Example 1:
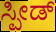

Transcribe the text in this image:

ಸ್ಪೀಡ್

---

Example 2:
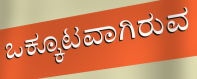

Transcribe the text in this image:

ಒಕ್ಕೂಟವಾಗಿರುವ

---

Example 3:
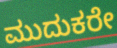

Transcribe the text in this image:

ಮುದುಕರೇ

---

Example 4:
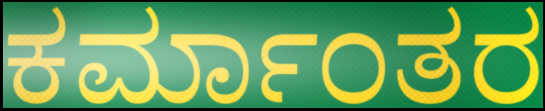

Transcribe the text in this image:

ಕರ್ಮಾಂತರ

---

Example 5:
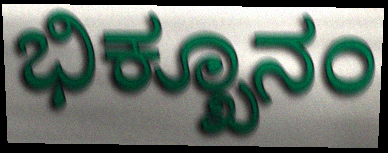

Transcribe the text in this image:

ಭಿಕ್ಖೂನಂ